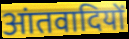
आंतवादियों